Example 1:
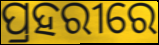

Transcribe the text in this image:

ପ୍ରହରୀରେ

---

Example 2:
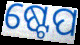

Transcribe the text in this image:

ଷ୍ଟେପ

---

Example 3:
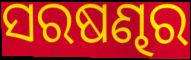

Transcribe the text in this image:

ସରଷଣ୍ଢର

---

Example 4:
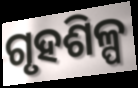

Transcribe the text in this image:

ଗୃହଶିଳ୍ପ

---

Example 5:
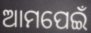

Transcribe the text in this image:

ଆମପେଇଁ